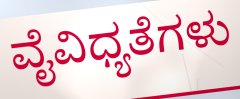
ವೈವಿಧ್ಯತೆಗಳು